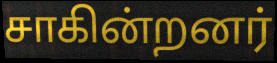
சாகின்றனர்